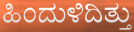
ಹಿಂದುಳಿದಿತ್ತು